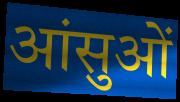
आंसुओं